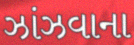
ઝાંઝવાના